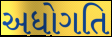
અધોગતિ